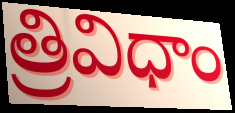
త్రివిధాం